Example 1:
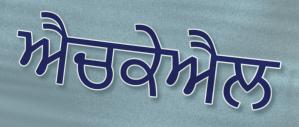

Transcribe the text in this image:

ਐਚਕੇਐਲ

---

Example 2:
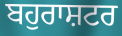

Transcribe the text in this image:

ਬਹੁਰਾਸ਼ਟਰ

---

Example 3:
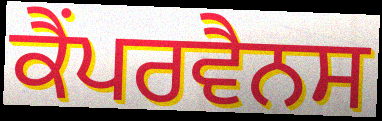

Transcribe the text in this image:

ਕੈਂਪਰਵੈਨਸ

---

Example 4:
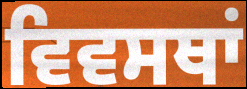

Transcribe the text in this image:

ਵਿਵਸਥਾਂ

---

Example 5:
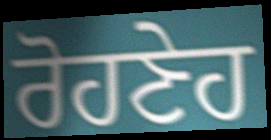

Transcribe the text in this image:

ਰੋਹਣੇਹ